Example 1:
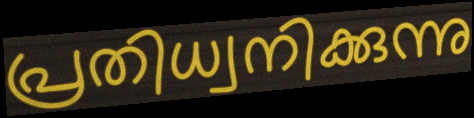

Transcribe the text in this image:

പ്രതിധ്വനിക്കുന്നു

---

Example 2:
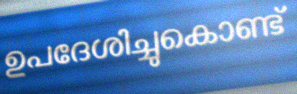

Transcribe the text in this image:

ഉപദേശിച്ചുകൊണ്ട്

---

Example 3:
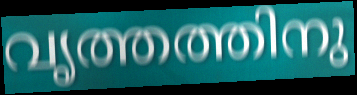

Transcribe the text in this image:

വൃത്തത്തിനു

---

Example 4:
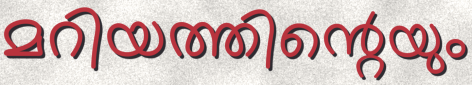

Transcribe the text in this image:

മറിയത്തിന്റെയും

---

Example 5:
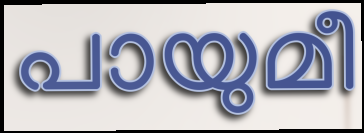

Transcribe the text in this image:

പായുമീ